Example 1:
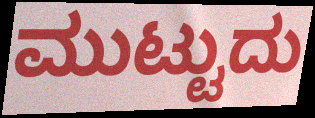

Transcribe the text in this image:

ಮುಟ್ಟುದು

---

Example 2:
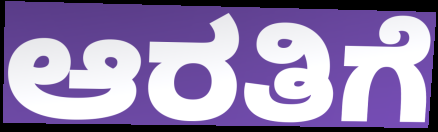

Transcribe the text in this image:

ಆರತಿಗೆ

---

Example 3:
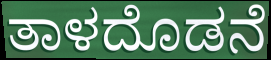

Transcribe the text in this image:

ತಾಳದೊಡನೆ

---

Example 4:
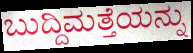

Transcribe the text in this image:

ಬುದ್ದಿಮತ್ತೆಯನ್ನು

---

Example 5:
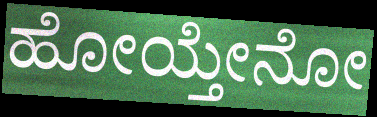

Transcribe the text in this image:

ಹೋಯ್ತೇನೋ